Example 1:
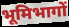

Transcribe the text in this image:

भूमिभागों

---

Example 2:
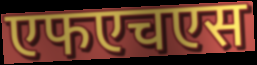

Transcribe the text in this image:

एफएचएस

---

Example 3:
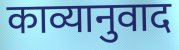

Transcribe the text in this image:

काव्यानुवाद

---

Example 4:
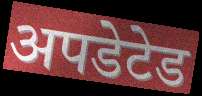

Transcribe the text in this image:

अपडेटेड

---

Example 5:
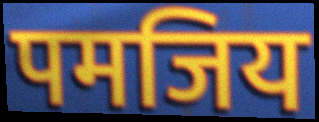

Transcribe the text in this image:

पमजिय